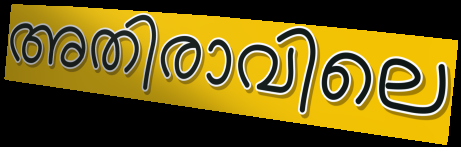
അതിരാവിലെ